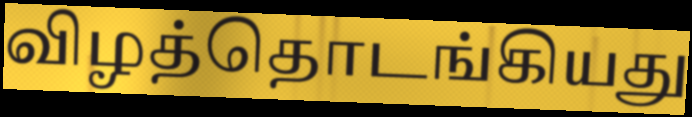
விழத்தொடங்கியது